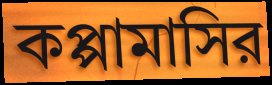
কপ্পামাসির